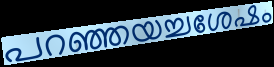
പറഞ്ഞയച്ചശേഷം